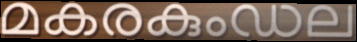
മകരകുംഡല